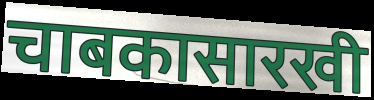
चाबकासारखी